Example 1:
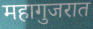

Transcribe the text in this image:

महागुजरात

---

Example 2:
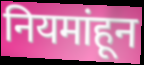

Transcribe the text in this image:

नियमांहून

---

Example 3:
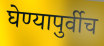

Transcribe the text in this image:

घेण्यापुर्वीच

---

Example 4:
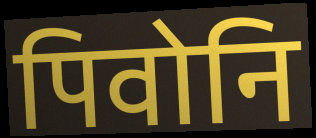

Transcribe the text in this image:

पिवोनि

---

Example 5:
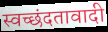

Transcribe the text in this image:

स्वच्छंदतावादी